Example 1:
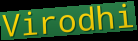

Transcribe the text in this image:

Virodhi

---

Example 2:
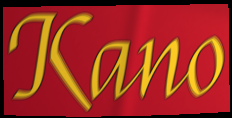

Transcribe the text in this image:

Kano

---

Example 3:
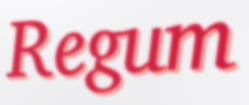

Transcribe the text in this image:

Regum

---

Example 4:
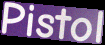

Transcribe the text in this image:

Pistol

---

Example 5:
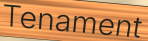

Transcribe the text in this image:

Tenament